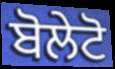
ਬੋਲੇਟੋ